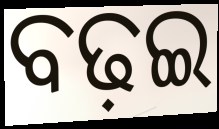
ବଢ଼ଇ